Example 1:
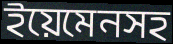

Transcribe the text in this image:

ইয়েমেনসহ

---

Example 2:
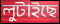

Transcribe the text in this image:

লুটাইছে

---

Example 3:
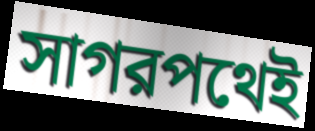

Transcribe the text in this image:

সাগরপথেই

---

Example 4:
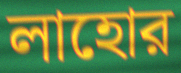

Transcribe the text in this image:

লাহোর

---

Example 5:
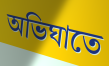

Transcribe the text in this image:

অভিঘাতে